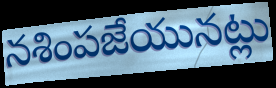
నశింపజేయునట్లు